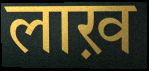
लाख़